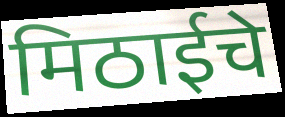
मिठाईचे